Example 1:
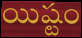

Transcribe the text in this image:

యిష్టం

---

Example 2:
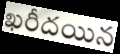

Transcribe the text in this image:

ఖరీదయిన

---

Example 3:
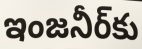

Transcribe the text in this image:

ఇంజనీర్‌కు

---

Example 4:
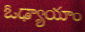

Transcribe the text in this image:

ఓఢ్యాయాం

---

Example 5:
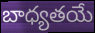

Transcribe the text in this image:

బాధ్యతయే